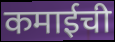
कमाईची